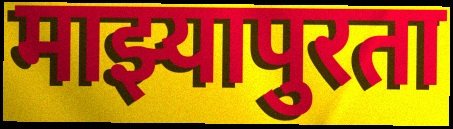
माझ्यापुरता